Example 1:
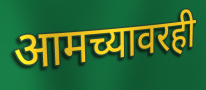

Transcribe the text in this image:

आमच्यावरही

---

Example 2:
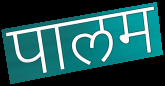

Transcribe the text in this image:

पालम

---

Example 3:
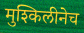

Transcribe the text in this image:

मुश्किलीनेच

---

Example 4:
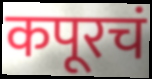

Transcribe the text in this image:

कपूरचं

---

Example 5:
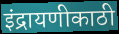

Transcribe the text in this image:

इंद्रायणीकाठी